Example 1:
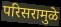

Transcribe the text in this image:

परिसरामुळे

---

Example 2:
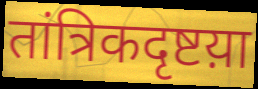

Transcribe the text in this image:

तांत्रिकदृष्टय़ा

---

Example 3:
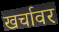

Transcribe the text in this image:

खर्चावर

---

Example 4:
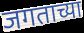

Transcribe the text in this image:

जगताच्या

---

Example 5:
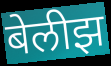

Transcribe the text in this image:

बेलीझ